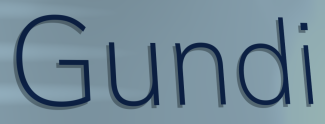
Gundi